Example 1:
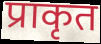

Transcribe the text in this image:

प्राकृत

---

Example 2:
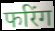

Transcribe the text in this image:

फरिंग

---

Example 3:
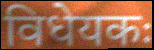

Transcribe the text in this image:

विधेयकः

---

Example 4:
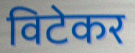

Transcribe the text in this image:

विटेकर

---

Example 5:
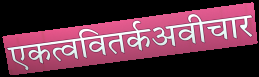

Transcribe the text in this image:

एकत्ववितर्कअवीचार